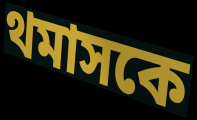
থমাসকে